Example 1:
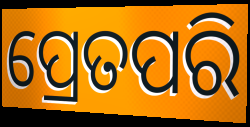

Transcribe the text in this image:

ପ୍ରେତପରି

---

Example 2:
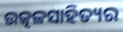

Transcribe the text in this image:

ଉତ୍କଳସାହିତ୍ୟର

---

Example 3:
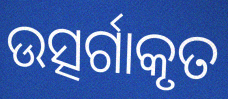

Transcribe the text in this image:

ଉତ୍ସର୍ଗାକୃତ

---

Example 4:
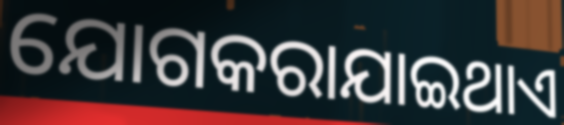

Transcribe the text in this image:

ଯୋଗକରାଯାଇଥାଏ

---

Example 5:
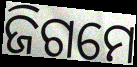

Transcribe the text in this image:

ଜିଗମେ